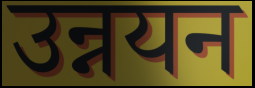
उन्नयन